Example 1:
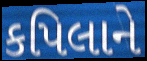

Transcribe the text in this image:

કપિલાને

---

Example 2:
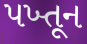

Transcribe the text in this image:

પખ્તૂન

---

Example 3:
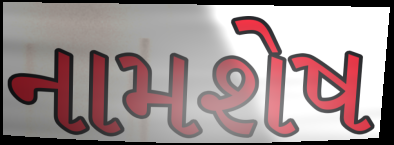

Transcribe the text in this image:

નામશેષ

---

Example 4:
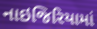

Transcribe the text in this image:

નાઇજિરિયામાં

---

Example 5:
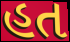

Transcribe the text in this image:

હત